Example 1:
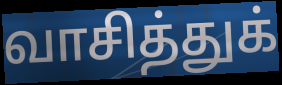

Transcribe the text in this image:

வாசித்துக்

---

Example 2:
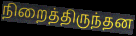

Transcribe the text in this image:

நிறைத்திருந்தன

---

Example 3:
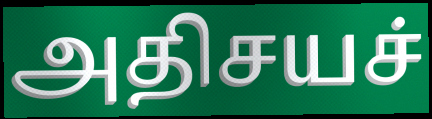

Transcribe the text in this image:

அதிசயச்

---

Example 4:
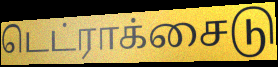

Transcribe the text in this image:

டெட்ராக்சைடு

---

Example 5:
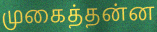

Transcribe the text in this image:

முகைத்தன்ன